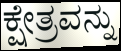
ಕ್ಷೇತ್ರವನ್ನು